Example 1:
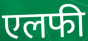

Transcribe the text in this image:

एलफी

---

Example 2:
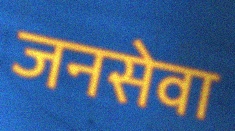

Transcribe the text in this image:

जनसेवा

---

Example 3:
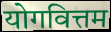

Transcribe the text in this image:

योगवित्तम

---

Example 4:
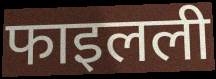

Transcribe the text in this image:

फाइलली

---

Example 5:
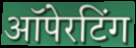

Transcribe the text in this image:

ऑपेरटिंग